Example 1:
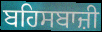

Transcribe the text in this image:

ਬਹਿਸਬਾਜ਼ੀ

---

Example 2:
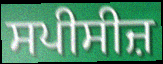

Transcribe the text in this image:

ਸਪੀਸੀਜ਼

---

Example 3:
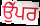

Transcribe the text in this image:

ਉੁੱਪਰ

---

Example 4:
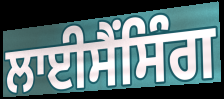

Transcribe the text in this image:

ਲਾਈਸੈਂਸਿੰਗ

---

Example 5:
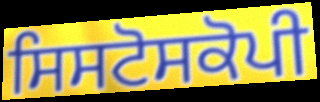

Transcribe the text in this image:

ਸਿਸਟੋਸਕੋਪੀ